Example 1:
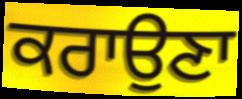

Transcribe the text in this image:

ਕਰਾਉਣਾ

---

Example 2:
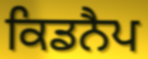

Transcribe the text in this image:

ਕਿਡਨੈਪ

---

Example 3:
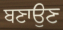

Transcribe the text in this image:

ਬਣਾਉਣ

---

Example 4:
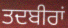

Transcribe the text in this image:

ਤਦਬੀਰਾਂ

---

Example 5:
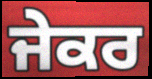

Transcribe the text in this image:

ਜੇਕਰ